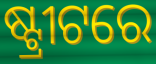
ଷ୍ଟ୍ରୀଟରେ